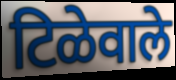
टिळेवाले